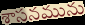
శాసనమును